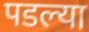
पडल्या